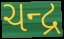
ચન્દ્ર